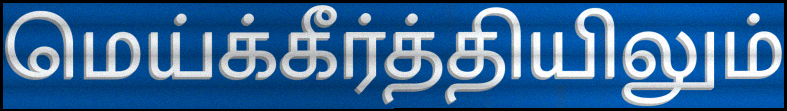
மெய்க்கீர்த்தியிலும்